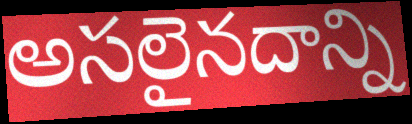
అసలైనదాన్ని